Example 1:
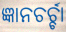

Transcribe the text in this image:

ଜ୍ଞାନଚର୍ଚ୍ଚା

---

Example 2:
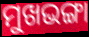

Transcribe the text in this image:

ମୁଖଭଙ୍ଗା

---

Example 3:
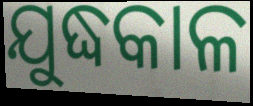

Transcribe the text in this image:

ଯୁଦ୍ଧକାଳ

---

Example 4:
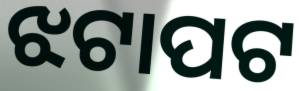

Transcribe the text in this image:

ଝଟାପଟ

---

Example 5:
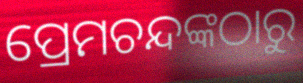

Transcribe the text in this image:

ପ୍ରେମଚନ୍ଦଙ୍କଠାରୁ